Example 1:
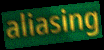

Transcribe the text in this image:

aliasing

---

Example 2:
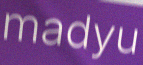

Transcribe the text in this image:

madyu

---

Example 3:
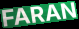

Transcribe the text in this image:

FARAN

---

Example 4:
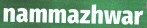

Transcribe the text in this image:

nammazhwar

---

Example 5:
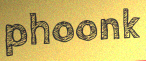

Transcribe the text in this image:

phoonk